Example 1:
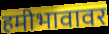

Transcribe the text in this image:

हमीभावावर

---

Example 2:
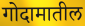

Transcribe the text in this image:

गोदामातील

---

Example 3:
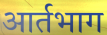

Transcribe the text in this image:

आर्तभाग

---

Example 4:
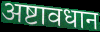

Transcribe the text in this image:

अष्टावधान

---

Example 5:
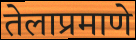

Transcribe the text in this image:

तेलाप्रमाणे